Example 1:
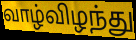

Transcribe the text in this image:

வாழ்விழந்து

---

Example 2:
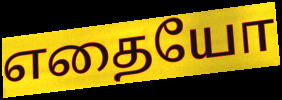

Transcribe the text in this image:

எதையோ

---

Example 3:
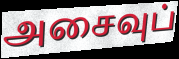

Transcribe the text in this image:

அசைவுப்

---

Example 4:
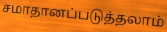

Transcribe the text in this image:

சமாதானப்படுத்தலாம்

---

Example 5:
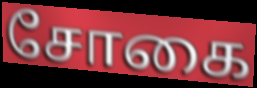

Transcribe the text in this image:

சோகை